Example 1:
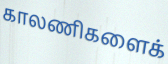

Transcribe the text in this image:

காலணிகளைக்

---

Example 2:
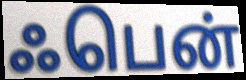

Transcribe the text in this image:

ஃபென்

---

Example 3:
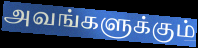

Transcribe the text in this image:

அவங்களுக்கும்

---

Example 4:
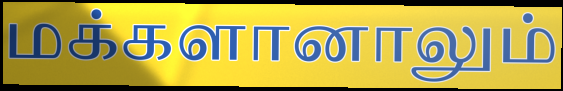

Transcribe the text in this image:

மக்களானாலும்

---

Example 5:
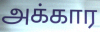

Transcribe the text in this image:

அக்கார